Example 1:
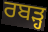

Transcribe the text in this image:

ਰਬੜ੍ਹ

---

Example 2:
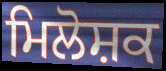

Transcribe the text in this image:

ਮਿਲੋਸ਼ਕ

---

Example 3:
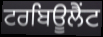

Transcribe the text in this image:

ਟਰਬਿਊਲੈਂਟ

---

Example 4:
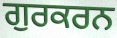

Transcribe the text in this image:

ਗੁਰਕਰਨ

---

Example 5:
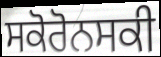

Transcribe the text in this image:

ਸਕੋਰੋਨਸਕੀ